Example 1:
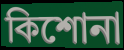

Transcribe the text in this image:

কিশোনা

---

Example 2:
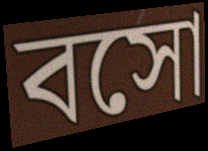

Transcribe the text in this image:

বসো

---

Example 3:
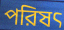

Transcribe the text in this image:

পরিষৎ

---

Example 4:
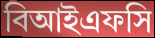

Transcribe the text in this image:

বিআইএফসি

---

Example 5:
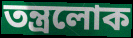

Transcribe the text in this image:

তন্ত্রলোক